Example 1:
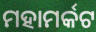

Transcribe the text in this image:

ମହାମର୍କଟ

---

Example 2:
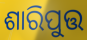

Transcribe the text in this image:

ଶାରିପୁତ୍ତ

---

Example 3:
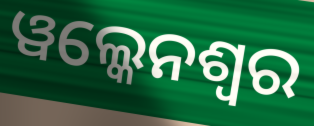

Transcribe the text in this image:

ୱଲ୍କେନଶ୍ୱର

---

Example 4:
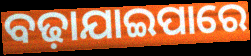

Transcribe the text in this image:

ବଢ଼ାଯାଇପାରେ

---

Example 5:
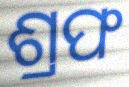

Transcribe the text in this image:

ଶ୍ରଫ